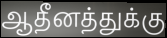
ஆதீனத்துக்கு